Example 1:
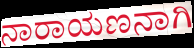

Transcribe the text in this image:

ನಾರಾಯಣನಾಗಿ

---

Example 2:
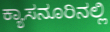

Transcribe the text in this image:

ಕ್ಯಾಸನೂರಿನಲ್ಲಿ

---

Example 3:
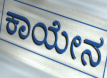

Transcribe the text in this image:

ಕಾಯೇನ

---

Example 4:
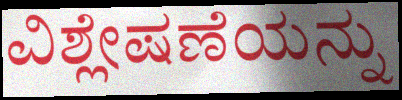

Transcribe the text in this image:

ವಿಶ್ಲೇಷಣೆಯನ್ನು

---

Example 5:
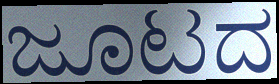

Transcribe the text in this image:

ಜೂಟದ